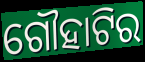
ଗୌହାଟିର